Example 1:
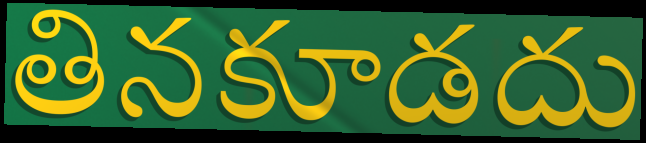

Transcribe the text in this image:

తినకూడదు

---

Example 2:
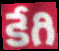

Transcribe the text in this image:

కేగి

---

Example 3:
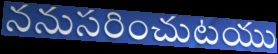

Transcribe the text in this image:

ననుసరించుటయు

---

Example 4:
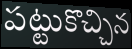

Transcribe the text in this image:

పట్టుకొచ్చిన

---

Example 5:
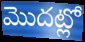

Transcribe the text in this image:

మొదట్లో